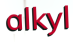
alkyl